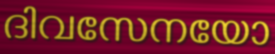
ദിവസേനയോ